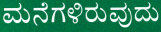
ಮನೆಗಳಿರುವುದು